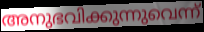
അനുഭവിക്കുന്നുവെന്ന്